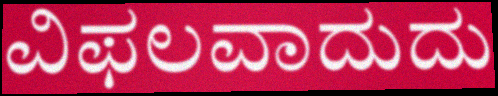
ವಿಫಲವಾದುದು